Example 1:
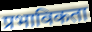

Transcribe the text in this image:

प्रभाविकता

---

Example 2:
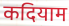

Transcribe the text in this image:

कदियाम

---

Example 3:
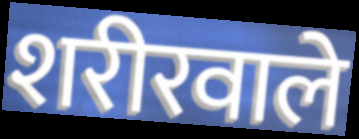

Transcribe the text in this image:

शरीरवाले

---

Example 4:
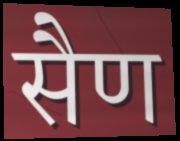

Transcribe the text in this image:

सैण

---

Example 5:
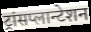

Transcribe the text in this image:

ट्रांसप्लान्टेशन